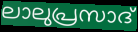
ലാലുപ്രസാദ്